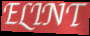
ELINT